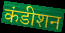
कंडीशन